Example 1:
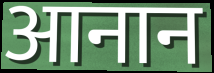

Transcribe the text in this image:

आनान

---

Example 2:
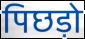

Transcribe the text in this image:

पिछड़ो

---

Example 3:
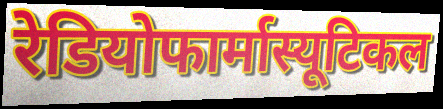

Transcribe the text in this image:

रेडियोफार्मास्यूटिकल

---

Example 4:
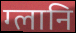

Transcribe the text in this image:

ग्लानि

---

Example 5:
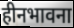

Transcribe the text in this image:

हीनभावना